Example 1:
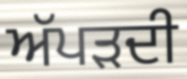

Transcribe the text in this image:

ਅੱਪੜਦੀ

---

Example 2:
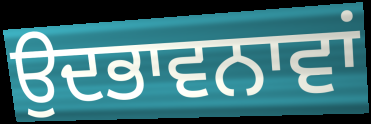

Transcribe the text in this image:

ਉਦਭਾਵਨਾਵਾਂ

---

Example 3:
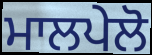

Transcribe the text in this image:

ਮਾਲਪੇਲੋ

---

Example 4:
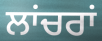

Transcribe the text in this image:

ਲਾਂਚਰਾਂ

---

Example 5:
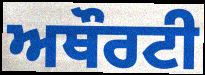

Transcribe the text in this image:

ਅਥੌਰਟੀ